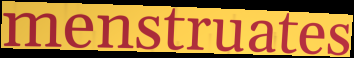
menstruates